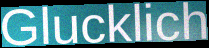
Glucklich